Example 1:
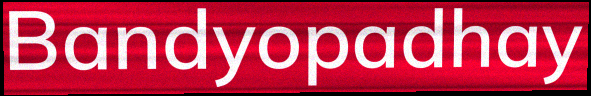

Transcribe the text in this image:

Bandyopadhay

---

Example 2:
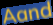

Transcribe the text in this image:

Aand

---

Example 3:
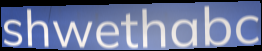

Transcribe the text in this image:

shwethabc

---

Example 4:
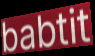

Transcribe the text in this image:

babtit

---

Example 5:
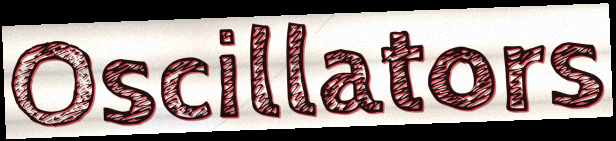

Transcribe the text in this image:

Oscillators